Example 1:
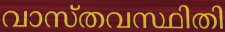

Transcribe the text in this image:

വാസ്തവസ്ഥിതി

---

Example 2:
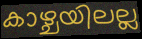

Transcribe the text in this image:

കാഴ്ചയിലല്ല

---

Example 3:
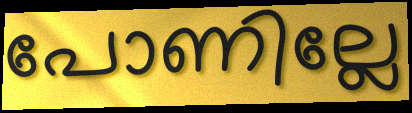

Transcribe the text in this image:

പോണില്ലേ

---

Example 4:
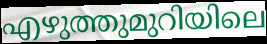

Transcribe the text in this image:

എഴുത്തുമുറിയിലെ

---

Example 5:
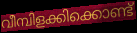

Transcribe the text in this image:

വീമ്പിളക്കിക്കൊണ്ട്